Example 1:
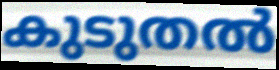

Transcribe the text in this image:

കുടുതൽ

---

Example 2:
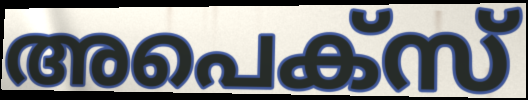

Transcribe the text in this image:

അപെക്സ്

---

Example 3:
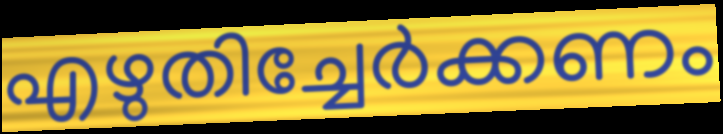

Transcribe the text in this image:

എഴുതിച്ചേർക്കണം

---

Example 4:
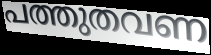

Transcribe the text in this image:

പത്തുതവണ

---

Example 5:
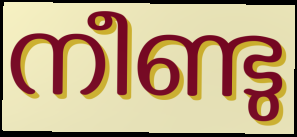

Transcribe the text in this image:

നീണ്ടു